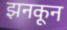
झनकून